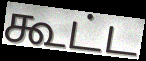
கூட்ட